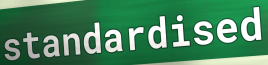
standardised